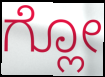
ಗ್ಲೋ